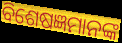
ବିଶେଷଜ୍ଞମାନଙ୍କ